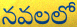
నవలలో